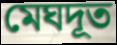
মেঘদূত